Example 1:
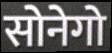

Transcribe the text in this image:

सोनेगो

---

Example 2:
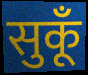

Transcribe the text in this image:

सुकूँ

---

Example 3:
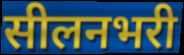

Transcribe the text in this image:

सीलनभरी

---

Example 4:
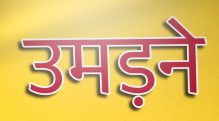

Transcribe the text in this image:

उमड़ने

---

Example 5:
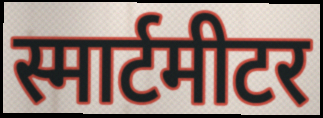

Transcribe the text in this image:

स्मार्टमीटर